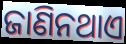
ଜାଣିନଥାଏ